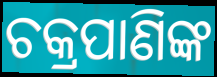
ଚକ୍ରପାଣିଙ୍କ